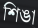
শিঙা